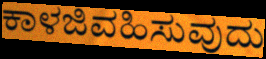
ಕಾಳಜಿವಹಿಸುವುದು